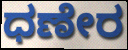
ಧಣೇರ